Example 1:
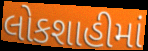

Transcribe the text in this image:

લોકશાહીમાં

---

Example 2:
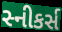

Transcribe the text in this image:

સ્નીકર્સ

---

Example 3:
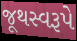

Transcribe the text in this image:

જૂથસ્વરૂપે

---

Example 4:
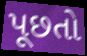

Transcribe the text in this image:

પૂછતો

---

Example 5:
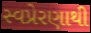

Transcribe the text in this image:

સ્વપ્રેરણાથી